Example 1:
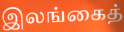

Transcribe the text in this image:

இலங்கைத்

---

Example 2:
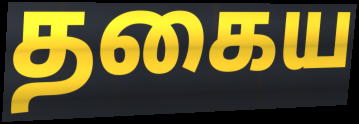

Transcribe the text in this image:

தகைய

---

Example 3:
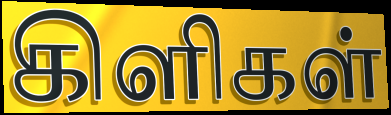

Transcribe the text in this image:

கிளிகள்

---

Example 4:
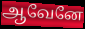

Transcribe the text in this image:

ஆவேனே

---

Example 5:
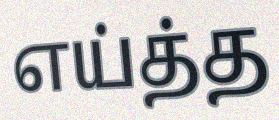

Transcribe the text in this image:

எய்த்த